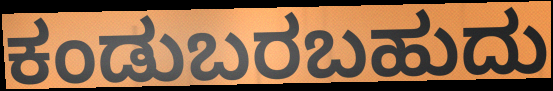
ಕಂಡುಬರಬಹುದು